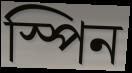
স্পিন